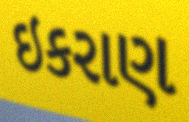
ઇકરાણ